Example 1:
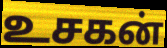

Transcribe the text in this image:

உசகன்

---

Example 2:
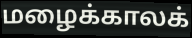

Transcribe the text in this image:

மழைக்காலக்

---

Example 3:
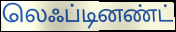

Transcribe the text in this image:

லெஃப்டினண்ட்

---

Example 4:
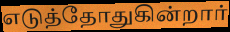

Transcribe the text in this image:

எடுத்தோதுகின்றார்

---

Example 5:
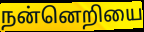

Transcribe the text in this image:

நன்னெறியை